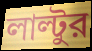
লাল্টুর